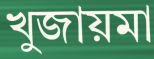
খুজায়মা